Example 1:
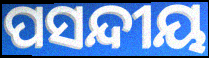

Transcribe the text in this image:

ପସନ୍ଦୀୟ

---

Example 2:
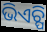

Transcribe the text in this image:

ଭିଏଚ୍ପି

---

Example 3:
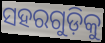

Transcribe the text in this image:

ସହରଗୁଡ଼ିକୁ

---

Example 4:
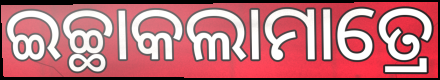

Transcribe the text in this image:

ଇଚ୍ଛାକଲାମାତ୍ରେ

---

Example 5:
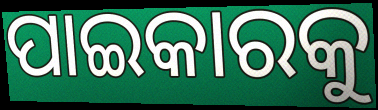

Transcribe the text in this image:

ପାଇକାରକୁ